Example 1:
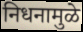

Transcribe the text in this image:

निधनामुळे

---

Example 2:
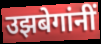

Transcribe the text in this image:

उझबेगांनीं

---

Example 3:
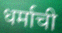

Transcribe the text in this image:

धर्माची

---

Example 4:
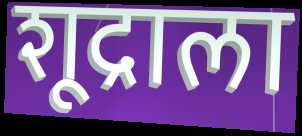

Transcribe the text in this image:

शूद्राला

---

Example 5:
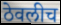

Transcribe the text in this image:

ठेवलीच